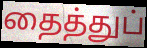
தைத்துப்